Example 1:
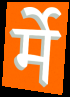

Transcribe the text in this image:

र्मे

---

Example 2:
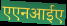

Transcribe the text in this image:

एएनआईए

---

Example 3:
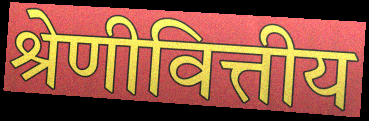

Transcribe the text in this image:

श्रेणीवित्तीय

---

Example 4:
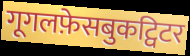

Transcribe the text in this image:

गूगलफ़ेसबुकट्विटर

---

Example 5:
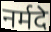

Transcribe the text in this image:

नर्मदे